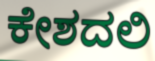
ಕೇಶದಲಿ